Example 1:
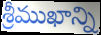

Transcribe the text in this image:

శ్రీముఖాన్ని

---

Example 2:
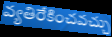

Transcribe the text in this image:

వ్యతిరేకించవచ్చు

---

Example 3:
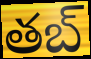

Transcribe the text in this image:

తబ్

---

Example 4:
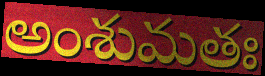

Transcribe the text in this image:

అంశుమతః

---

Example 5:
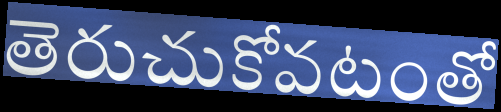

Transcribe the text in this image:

తెరుచుకోవటంతో